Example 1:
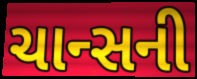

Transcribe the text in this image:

ચાન્સની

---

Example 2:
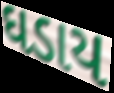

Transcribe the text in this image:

ઘડાય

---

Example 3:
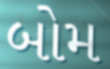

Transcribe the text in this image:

બોમ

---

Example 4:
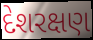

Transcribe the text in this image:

દેશરક્ષણ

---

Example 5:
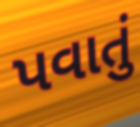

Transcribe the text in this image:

પવાતું